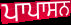
ਪਾਪਾਸਨ